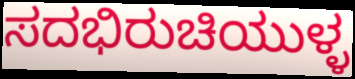
ಸದಭಿರುಚಿಯುಳ್ಳ